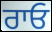
ਰਾਓ